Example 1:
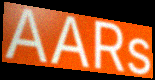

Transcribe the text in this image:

AARs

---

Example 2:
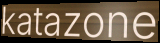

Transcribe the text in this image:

katazone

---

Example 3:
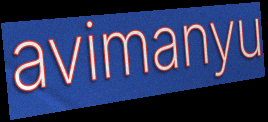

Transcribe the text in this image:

avimanyu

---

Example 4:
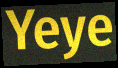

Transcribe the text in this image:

Yeye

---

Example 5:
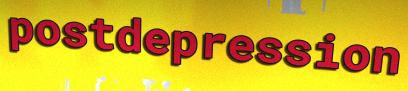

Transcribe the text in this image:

postdepression